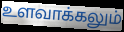
உளவாக்கலும்